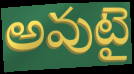
అవుటై